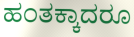
ಹಂತಕ್ಕಾದರೂ